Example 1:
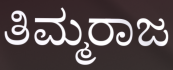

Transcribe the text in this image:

ತಿಮ್ಮರಾಜ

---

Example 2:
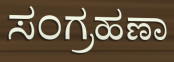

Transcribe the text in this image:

ಸಂಗ್ರಹಣಾ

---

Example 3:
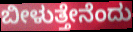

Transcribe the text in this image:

ಬೀಳುತ್ತೇನೆಂದು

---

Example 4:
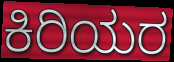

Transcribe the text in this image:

ಕಿರಿಯರ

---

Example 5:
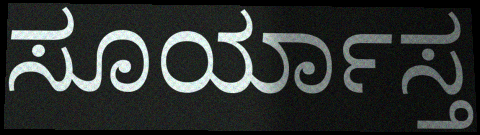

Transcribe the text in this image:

ಸೂರ್ಯಾಸ್ತ